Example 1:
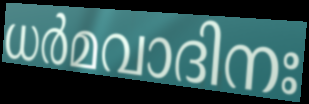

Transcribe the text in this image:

ധർമവാദിനഃ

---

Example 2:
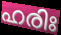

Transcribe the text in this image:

ഹരിഃ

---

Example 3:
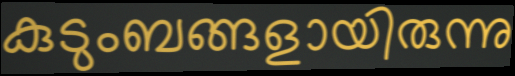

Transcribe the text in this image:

കുടുംബങ്ങളായിരുന്നു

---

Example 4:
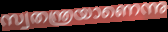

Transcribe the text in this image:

സ്വതന്ത്രയാണെന്നു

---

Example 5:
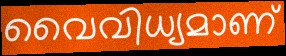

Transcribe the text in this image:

വൈവിധ്യമാണ്